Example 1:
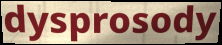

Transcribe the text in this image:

dysprosody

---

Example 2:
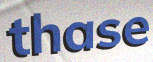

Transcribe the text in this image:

thase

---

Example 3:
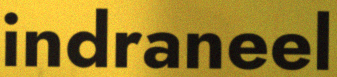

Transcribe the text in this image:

indraneel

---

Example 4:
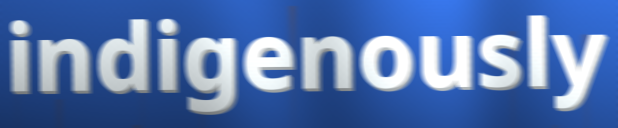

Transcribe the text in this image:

indigenously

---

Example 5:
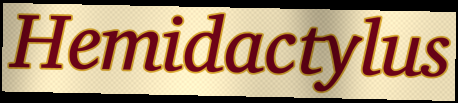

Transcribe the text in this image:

Hemidactylus